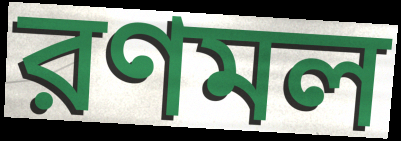
রণমল